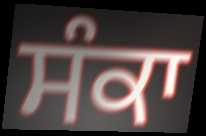
ਸੰਕਾ